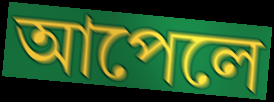
আপেলে